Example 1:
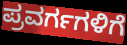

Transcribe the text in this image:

ಪ್ರವರ್ಗಗಳಿಗೆ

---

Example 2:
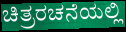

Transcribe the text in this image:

ಚಿತ್ರರಚನೆಯಲ್ಲಿ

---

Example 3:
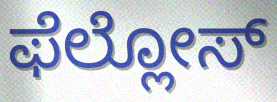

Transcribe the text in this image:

ಫೆಲ್ಲೋಸ್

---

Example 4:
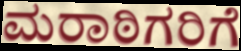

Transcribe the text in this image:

ಮರಾಠಿಗರಿಗೆ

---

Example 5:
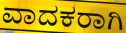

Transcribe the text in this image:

ವಾದಕರಾಗಿ